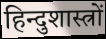
हिन्दुशास्त्रों